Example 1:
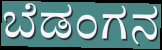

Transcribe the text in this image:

ಬೆಡಂಗನ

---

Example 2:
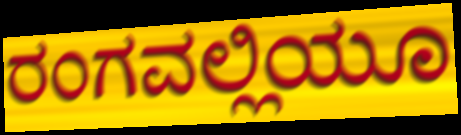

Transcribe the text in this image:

ರಂಗವಲ್ಲಿಯೂ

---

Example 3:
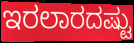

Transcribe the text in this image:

ಇರಲಾರದಷ್ಟು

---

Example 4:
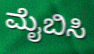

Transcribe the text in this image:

ಮೈಬಿಸಿ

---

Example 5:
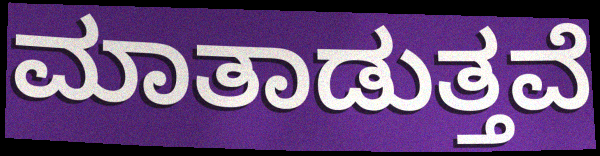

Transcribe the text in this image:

ಮಾತಾಡುತ್ತವೆ